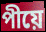
পীয়ে